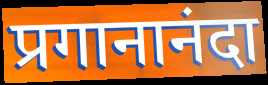
प्रगानानंदा